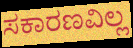
ಸಕಾರಣವಿಲ್ಲ